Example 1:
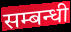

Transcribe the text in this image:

सम्‍बन्‍धी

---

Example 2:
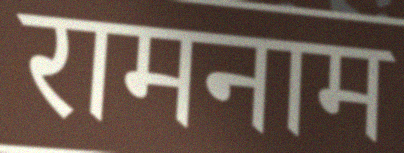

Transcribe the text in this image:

रामनाम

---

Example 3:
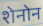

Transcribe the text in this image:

शेनोन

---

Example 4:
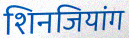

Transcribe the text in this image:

शिनजियांग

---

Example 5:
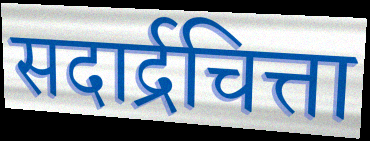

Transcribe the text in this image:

सदार्द्रचित्ता